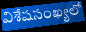
విశేషసంఖ్యలో